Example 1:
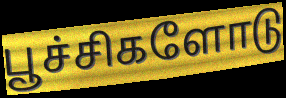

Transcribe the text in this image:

பூச்சிகளோடு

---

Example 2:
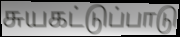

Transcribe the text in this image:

சுயகட்டுப்பாடு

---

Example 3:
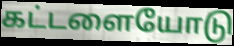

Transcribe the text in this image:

கட்டளையோடு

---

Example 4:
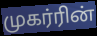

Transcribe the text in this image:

முகர்ரின்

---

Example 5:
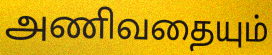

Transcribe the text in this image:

அணிவதையும்